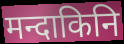
मन्दाकिनि